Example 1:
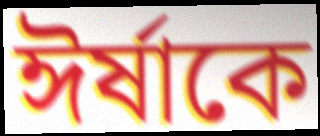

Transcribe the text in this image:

ঈর্ষাকে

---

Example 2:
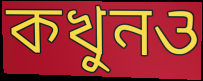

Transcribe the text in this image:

কখুনও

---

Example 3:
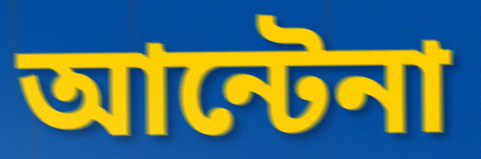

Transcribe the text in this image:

আন্টেনা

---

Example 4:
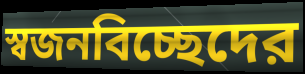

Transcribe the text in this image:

স্বজনবিচ্ছেদের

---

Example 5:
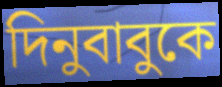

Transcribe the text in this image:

দিনুবাবুকে